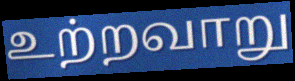
உற்றவாறு